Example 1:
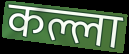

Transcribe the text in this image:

कल्ला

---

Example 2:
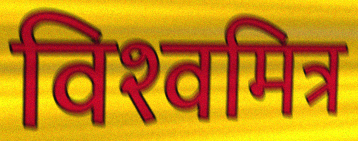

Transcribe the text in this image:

विश्वमित्र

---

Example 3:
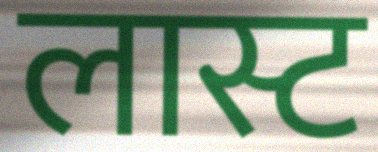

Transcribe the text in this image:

लास्ट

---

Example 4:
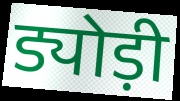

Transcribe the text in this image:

ड्योड़ी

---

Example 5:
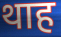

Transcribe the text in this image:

थाह